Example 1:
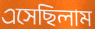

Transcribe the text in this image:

এসেছিলাম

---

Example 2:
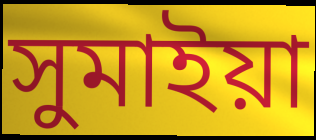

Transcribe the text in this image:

সুমাইয়া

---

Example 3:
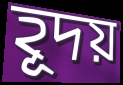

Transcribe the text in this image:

হূদয়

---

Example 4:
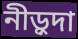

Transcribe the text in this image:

নীড়ুদা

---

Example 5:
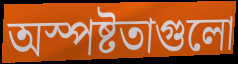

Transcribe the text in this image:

অস্পষ্টতাগুলো